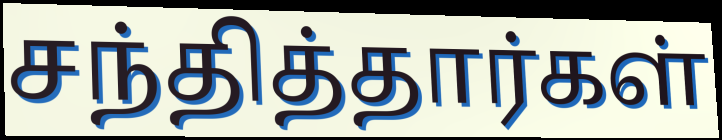
சந்தித்தார்கள்